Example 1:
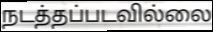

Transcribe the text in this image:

நடத்தப்படவில்லை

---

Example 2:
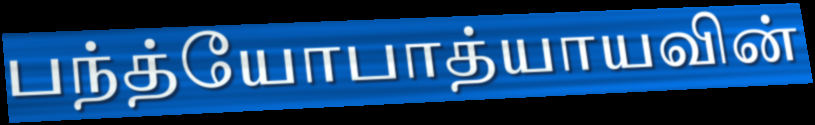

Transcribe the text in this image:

பந்த்யோபாத்யாயவின்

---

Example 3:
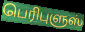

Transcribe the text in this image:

பெரிபுளுஸ்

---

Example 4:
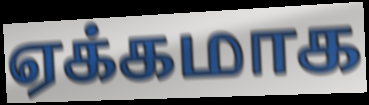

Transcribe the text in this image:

ஏக்கமாக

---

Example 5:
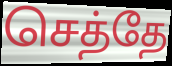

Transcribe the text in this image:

செத்தே